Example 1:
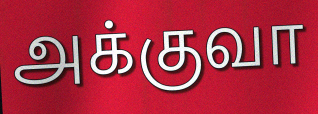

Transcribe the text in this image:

அக்குவா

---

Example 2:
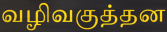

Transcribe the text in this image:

வழிவகுத்தன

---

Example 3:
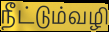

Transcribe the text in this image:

நீட்டும்வழி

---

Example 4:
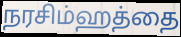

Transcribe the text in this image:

நரசிம்ஹத்தை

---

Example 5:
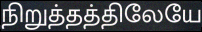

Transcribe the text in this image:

நிறுத்தத்திலேயே